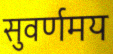
सुवर्णमय